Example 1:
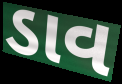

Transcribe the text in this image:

ડાવ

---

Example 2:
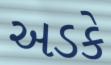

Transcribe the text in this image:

અડકે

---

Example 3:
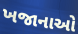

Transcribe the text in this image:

ખજાનાઓ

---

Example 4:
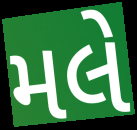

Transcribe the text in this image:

મલે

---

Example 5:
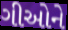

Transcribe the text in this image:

ગીઓને